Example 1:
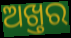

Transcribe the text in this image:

ଅଖ୍ତର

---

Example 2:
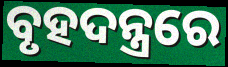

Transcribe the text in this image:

ବୃହଦନ୍ତ୍ରରେ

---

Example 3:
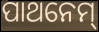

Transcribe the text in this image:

ପାଥନେମ୍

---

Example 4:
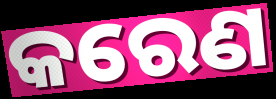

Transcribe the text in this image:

କରେଣ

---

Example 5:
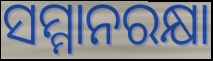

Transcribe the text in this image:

ସମ୍ମାନରକ୍ଷା